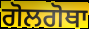
ਗੋਲਗੋਥਾ